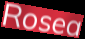
Rosea